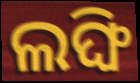
ଲଙ୍ଘି